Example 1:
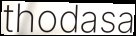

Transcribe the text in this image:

thodasa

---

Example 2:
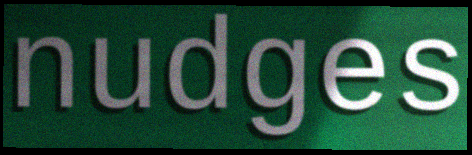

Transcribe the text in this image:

nudges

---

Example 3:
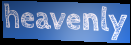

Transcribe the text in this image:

heavenly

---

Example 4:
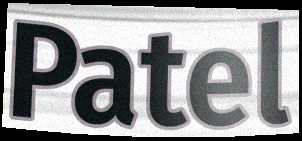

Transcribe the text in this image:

Patel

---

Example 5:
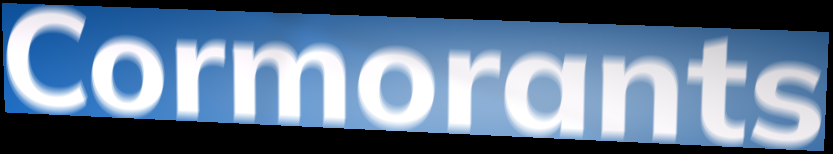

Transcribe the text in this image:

Cormorants